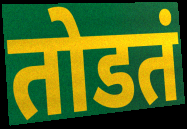
तोडतं